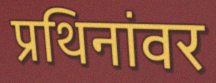
प्रथिनांवर